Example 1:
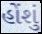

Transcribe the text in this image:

હોંશું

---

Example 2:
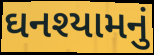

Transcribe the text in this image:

ઘનશ્યામનું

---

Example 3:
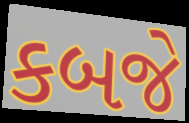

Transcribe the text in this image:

કબજે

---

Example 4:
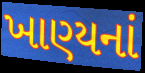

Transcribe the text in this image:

ખાણ્યનાં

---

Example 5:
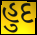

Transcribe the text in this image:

હુદ